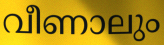
വീണാലും